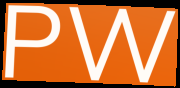
PW